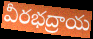
వీరభద్రాయ